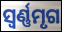
ସ୍ଵର୍ଣ୍ଣମୃଗ